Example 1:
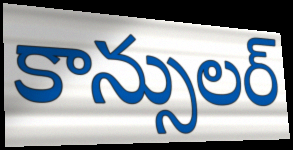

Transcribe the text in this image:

కాన్సులర్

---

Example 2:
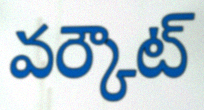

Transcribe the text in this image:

వర్కౌట్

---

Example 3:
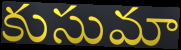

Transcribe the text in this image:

కుసుమా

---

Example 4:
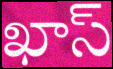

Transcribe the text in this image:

ఖాస్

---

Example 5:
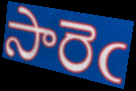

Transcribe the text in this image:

సారెఁ